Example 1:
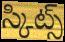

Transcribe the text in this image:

స్కిట్స్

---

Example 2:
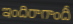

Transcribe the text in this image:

ఇందిరాగాందీ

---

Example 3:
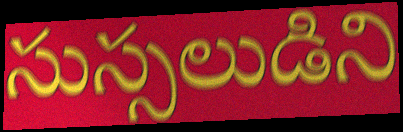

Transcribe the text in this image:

సుస్సలుడిని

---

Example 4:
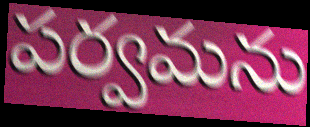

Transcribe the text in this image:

పర్వమను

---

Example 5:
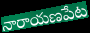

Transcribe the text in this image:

నారాయణపేట